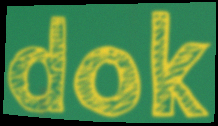
dok